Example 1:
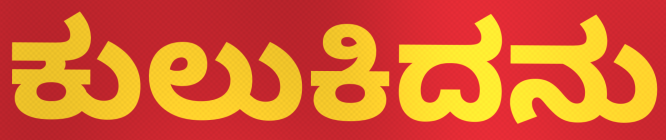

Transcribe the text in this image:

ಕುಲುಕಿದನು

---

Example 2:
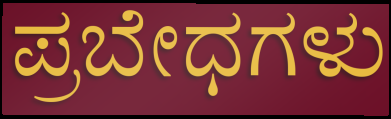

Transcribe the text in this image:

ಪ್ರಬೇಧಗಳು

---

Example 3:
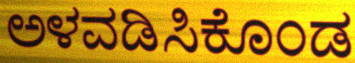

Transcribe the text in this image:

ಅಳವಡಿಸಿಕೊಂಡ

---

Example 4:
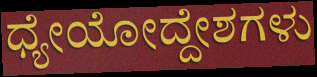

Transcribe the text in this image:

ಧ್ಯೇಯೋದ್ದೇಶಗಳು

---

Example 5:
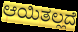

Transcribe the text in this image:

ಆಯಿತಲ್ಲದೆ